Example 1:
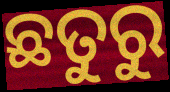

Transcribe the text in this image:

ଛତୁରୁ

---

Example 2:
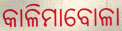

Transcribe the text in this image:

କାଳିମାବୋଳା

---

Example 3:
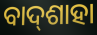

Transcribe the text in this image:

ବାଦ୍‌ଶାହା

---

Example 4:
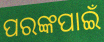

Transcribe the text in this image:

ପରଙ୍କପାଇଁ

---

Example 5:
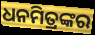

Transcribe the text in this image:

ଧନମିତ୍ରଙ୍କର